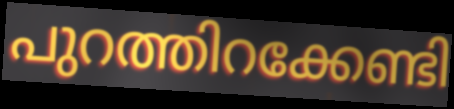
പുറത്തിറക്കേണ്ടി